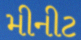
મીનીટ